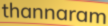
thannaram